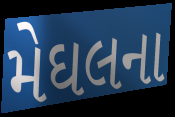
મેઘલના